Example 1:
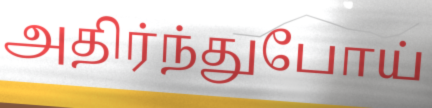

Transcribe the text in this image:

அதிர்ந்துபோய்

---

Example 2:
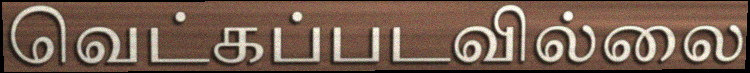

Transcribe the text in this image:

வெட்கப்படவில்லை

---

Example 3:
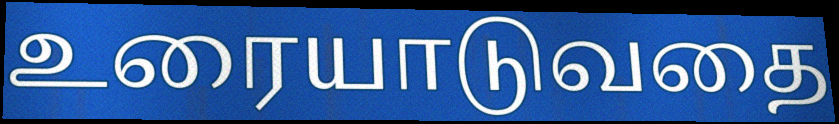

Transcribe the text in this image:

உரையாடுவதை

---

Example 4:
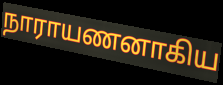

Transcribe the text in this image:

நாராயணனாகிய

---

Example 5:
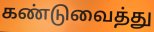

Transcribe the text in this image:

கண்டுவைத்து